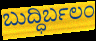
ಬುದ್ಧಿರ್ಬಲಂ